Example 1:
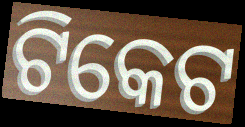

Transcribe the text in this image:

ଟିକେଟ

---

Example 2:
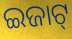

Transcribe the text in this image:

ଇଜାଟ୍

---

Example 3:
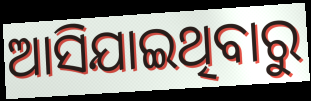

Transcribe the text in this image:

ଆସିଯାଇଥିବାରୁ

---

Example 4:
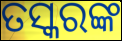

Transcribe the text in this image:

ତସ୍କରଙ୍କ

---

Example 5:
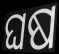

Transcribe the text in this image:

ଘଷ